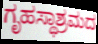
ಗೃಹಸ್ಥಾಶ್ರಮದ